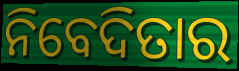
ନିବେଦିତାର